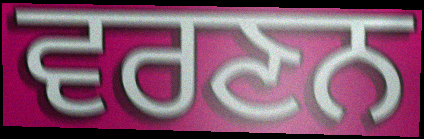
ਵਰਣਨ